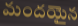
మందయైన